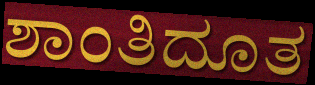
ಶಾಂತಿದೂತ